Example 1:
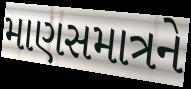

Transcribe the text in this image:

માણસમાત્રને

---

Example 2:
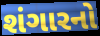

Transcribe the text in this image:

શંગારનો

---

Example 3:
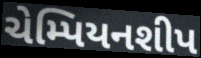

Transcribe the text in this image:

ચેમ્પિયનશીપ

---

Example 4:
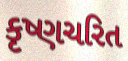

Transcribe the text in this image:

કૃષ્ણચરિત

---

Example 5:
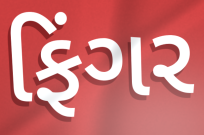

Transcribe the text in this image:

ફિંગર